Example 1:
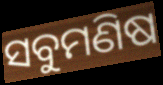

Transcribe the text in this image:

ସବୁମଣିଷ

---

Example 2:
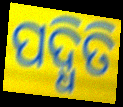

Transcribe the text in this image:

ପଦ୍ଧିତି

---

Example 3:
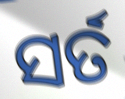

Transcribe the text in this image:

ସର୍ତ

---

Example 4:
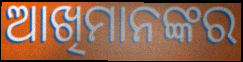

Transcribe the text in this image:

ଆଖିମାନଙ୍କର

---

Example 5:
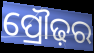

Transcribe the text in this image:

ପ୍ରୌଢ଼ର